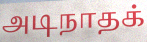
அடிநாதக்